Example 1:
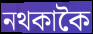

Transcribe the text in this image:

নথকাকৈ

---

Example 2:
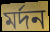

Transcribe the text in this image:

মৰ্দন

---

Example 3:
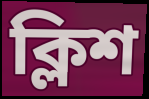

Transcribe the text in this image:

ক্লিশ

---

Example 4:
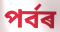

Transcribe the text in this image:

পৰ্বৰ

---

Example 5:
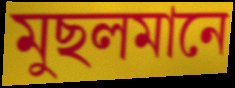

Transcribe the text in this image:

মুছলমানে